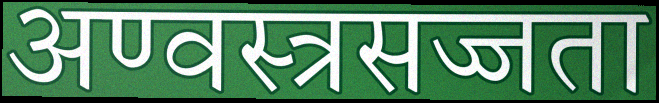
अण्वस्त्रसज्जता